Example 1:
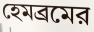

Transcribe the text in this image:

হেমব্রমের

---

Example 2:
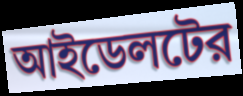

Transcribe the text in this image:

আইডেলটের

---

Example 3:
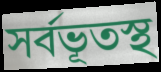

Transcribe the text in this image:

সর্বভূতস্থ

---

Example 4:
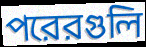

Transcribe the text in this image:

পরেরগুলি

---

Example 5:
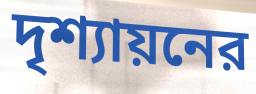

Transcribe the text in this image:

দৃশ্যায়নের